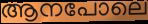
ആനപോലെ